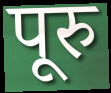
पूरु